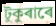
টুকুৰাৰে